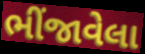
ભીંજાવેલા